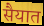
सैयात